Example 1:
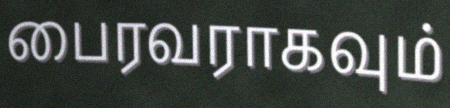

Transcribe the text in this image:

பைரவராகவும்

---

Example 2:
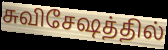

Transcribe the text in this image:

சுவிசேஷத்தில்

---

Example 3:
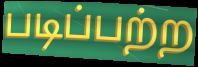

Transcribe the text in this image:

படிப்பற்ற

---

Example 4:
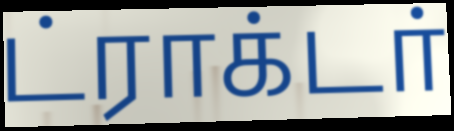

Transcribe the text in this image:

ட்ராக்டர்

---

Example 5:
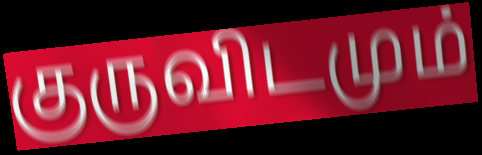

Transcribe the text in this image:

குருவிடமும்